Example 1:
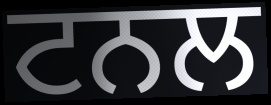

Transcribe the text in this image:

ਟਨਲ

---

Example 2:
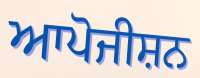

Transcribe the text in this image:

ਆਪੋਜੀਸ਼ਨ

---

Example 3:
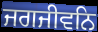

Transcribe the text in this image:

ਜਗਜੀਵਨਿ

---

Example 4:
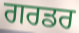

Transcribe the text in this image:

ਗਰਡਰ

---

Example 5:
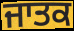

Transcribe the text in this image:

ਜਾਤਕ